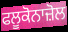
ਫਲੂਕੋਨਾਜ਼ੋਲ